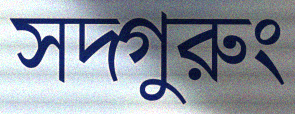
সদ্গুরুং